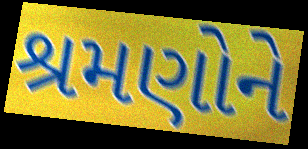
શ્રમણોને